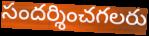
సందర్శించగలరు